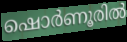
ഷൊർണൂരിൽ